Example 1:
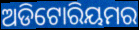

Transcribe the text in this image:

ଅଡିଟୋରିୟମର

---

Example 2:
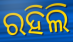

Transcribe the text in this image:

ରହିଲି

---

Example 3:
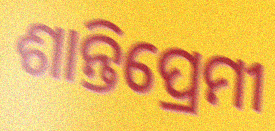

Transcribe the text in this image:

ଶାନ୍ତିପ୍ରେମୀ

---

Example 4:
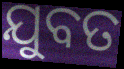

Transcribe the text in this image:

ଯୁବତ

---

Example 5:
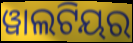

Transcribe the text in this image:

ୱାଲଟିୟର